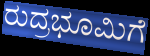
ರುದ್ರಭೂಮಿಗೆ